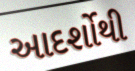
આદર્શોથી